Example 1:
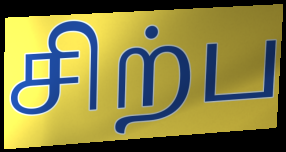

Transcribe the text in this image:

சிற்ப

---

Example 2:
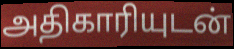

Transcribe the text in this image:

அதிகாரியுடன்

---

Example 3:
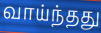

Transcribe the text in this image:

வாய்ந்தது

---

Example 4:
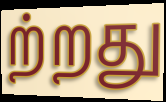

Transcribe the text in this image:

ற்றது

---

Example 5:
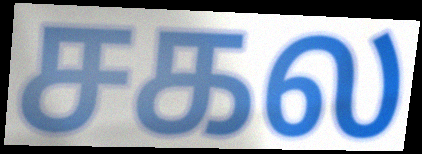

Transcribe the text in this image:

சகல